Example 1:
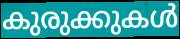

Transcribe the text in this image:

കുരുക്കുകൾ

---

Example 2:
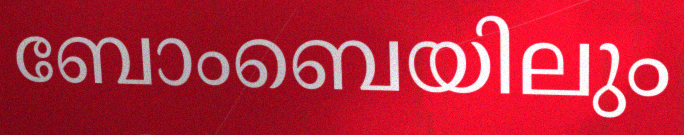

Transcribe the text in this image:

ബോംബെയിലും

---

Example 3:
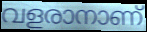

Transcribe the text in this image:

വളരാനാണ്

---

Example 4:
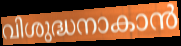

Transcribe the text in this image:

വിശുദ്ധനാകാൻ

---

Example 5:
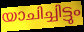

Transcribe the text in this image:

യാചിച്ചിട്ടും